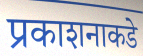
प्रकाशनाकडे